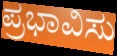
ಪ್ರಭಾವಿಸು